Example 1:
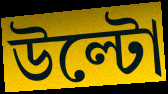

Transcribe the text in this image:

উল্টো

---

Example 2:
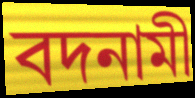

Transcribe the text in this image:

বদনামী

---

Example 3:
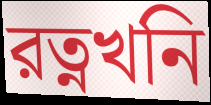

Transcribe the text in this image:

রত্নখনি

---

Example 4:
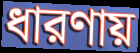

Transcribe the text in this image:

ধারণায়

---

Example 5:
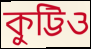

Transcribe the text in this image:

কুট্টিও